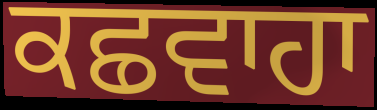
ਕਛਵਾਹਾ